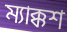
ম্যাক্কশ